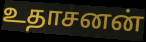
உதாசனன்